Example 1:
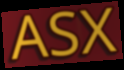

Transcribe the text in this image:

ASX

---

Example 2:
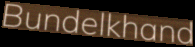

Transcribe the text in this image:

Bundelkhand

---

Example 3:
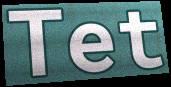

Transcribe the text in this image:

Tet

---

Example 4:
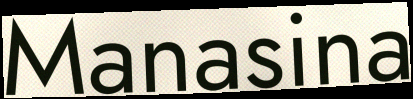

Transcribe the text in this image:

Manasina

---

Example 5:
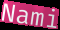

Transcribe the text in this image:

Nami